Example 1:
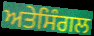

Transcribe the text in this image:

ਅਤੇਸਿੰਗਲ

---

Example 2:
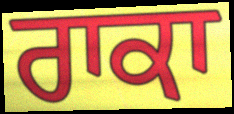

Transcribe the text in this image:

ਰਾਕਾ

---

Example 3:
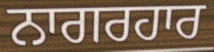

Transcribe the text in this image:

ਨਾਗਰਹਾਰ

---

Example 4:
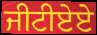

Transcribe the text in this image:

ਜੀਟੀਏਏ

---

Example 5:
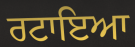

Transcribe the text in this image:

ਰਟਾਇਆ